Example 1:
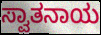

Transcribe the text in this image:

ಸ್ವಾತನಾಯ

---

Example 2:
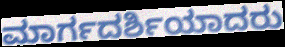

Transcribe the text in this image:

ಮಾರ್ಗದರ್ಶಿಯಾದರು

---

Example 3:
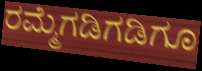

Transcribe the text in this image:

ರಮ್ಮೆಗಡಿಗಡಿಗೂ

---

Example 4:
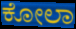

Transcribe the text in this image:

ಕೋಲಾ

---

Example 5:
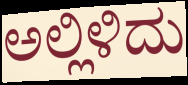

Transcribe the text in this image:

ಅಲ್ಲಿಳಿದು